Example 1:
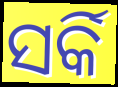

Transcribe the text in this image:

ସର୍କି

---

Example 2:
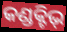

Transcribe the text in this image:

କଣ୍ଡକ୍ଟିଭ୍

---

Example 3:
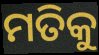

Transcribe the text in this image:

ମତିକୁ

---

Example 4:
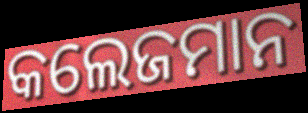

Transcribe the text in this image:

କଲେଜମାନ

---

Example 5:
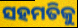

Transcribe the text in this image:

ସହମତିକୁ